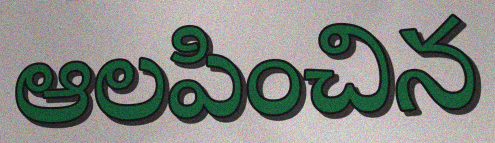
ఆలపించిన